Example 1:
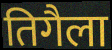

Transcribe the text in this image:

तिगैला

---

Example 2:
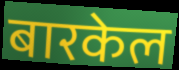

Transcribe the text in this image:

बारकेल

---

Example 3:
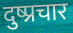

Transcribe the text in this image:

दुष्प्रचार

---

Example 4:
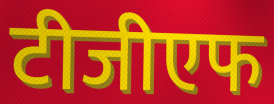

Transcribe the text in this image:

टीजीएफ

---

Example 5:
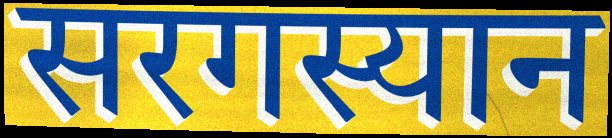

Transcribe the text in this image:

सरगस्यान